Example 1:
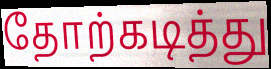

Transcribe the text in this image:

தோற்கடித்து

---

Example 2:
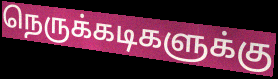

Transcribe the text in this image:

நெருக்கடிகளுக்கு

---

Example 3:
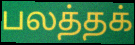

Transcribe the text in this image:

பலத்தக்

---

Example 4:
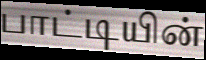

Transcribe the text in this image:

பாட்டியின்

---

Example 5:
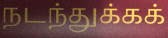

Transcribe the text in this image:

நடந்துக்கக்